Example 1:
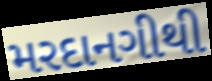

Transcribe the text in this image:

મરદાનગીથી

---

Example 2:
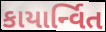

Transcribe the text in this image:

કાયાર્ન્વિત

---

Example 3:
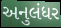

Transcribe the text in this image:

અનુલંધર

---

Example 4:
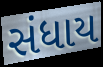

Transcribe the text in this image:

સંધાય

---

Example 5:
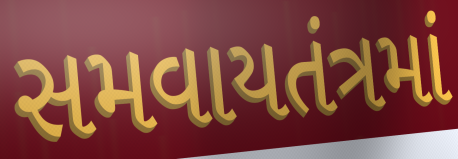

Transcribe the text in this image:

સમવાયતંત્રમાં